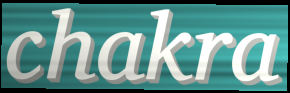
chakra